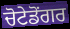
ਚੋਟੇਡੋਂਗਰ